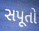
સપૂતો